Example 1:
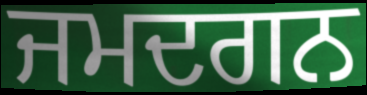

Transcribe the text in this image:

ਜਮਦਗਨ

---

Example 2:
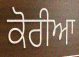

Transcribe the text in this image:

ਕੋਰੀਆ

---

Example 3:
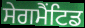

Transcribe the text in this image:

ਸੇਗਮੈਂਟਿਡ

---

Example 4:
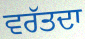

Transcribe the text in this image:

ਵਰੱਤਦਾ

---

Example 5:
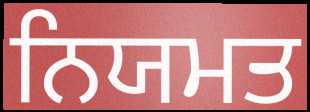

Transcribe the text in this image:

ਨਿਯਮਤ